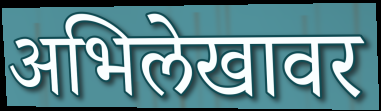
अभिलेखावर